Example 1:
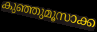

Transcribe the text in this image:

കുഞ്ഞുമൂസാക്ക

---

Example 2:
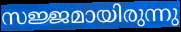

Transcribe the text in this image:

സജ്ജമായിരുന്നു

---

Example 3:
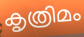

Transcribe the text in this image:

കൃത്രിമം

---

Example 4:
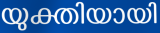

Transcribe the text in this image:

യുക്തിയായി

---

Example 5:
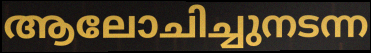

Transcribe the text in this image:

ആലോചിച്ചുനടന്ന